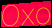
Oxo